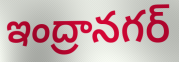
ఇంద్రానగర్